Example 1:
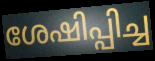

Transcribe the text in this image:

ശേഷിപ്പിച്ച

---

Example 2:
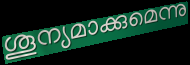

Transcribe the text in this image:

ശൂന്യമാക്കുമെന്നു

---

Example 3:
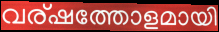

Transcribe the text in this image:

വര്ഷത്തോളമായി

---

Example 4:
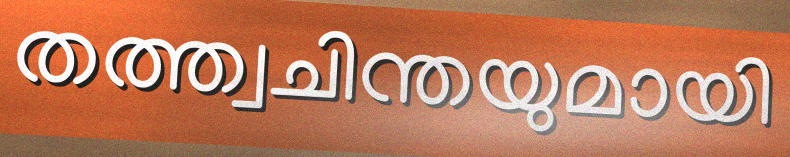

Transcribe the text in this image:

തത്ത്വചിന്തയുമായി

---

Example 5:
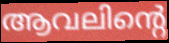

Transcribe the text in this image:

ആവലിന്റെ